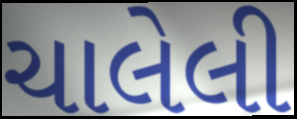
ચાલેલી